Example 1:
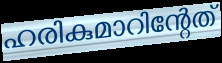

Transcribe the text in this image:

ഹരികുമാറിന്റേത്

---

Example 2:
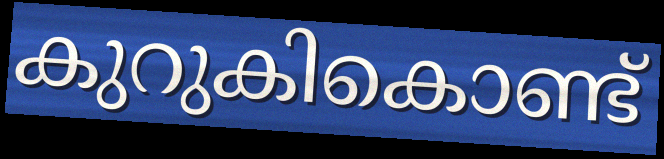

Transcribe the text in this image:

കുറുകികൊണ്ട്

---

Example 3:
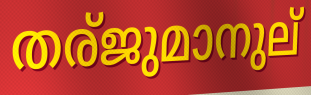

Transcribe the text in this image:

തര്ജുമാനുല്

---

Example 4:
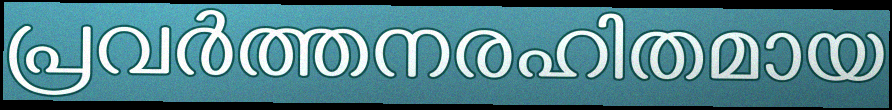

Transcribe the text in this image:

പ്രവർത്തനരഹിതമായ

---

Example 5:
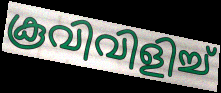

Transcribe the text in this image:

കൂവിവിളിച്ച്